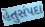
હેતુસંપદા